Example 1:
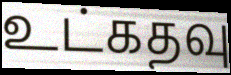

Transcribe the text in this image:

உட்கதவு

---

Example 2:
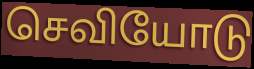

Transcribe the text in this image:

செவியோடு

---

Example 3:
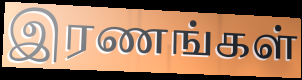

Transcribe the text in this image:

இரணங்கள்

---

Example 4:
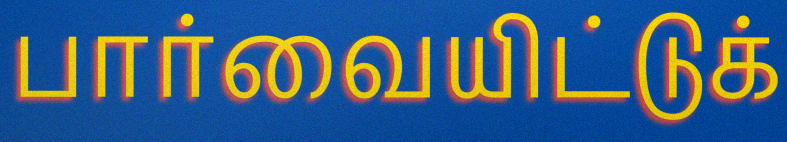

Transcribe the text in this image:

பார்வையிட்டுக்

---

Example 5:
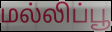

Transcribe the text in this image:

மல்லிப்பூ